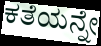
ಕತೆಯನ್ನೇ